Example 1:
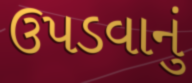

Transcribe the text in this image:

ઉપડવાનું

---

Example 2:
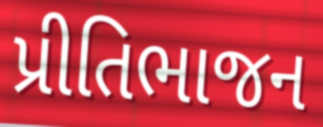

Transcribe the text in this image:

પ્રીતિભાજન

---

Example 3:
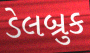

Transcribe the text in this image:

ડેલબ્રુક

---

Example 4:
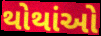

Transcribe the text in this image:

થોથાંઓ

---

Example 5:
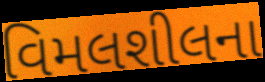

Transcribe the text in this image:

વિમલશીલના